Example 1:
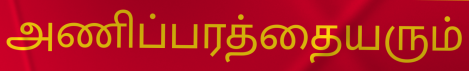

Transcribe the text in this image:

அணிப்பரத்தையரும்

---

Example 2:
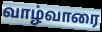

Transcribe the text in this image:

வாழ்வாரை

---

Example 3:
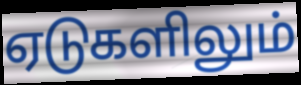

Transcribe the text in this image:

ஏடுகளிலும்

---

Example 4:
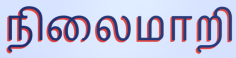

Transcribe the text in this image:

நிலைமாறி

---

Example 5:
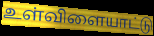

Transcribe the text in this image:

உள்விளையாட்டு